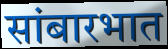
सांबारभात